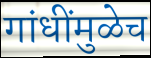
गांधींमुळेच